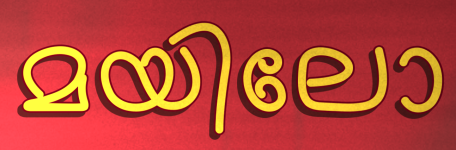
മയിലോ